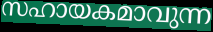
സഹായകമാവുന്ന